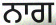
ਨਾਗ